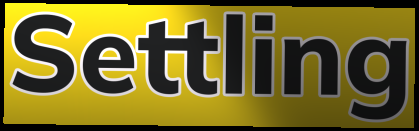
Settling